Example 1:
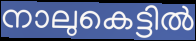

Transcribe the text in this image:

നാലുകെട്ടിൽ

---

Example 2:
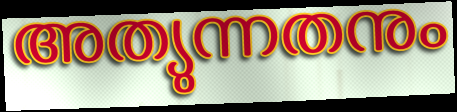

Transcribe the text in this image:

അത്യുന്നതനും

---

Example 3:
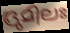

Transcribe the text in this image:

ദ്രുമിലഃ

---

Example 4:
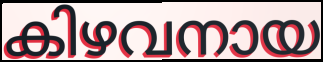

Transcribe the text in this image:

കിഴവനായ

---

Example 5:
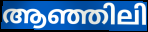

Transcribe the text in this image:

ആഞ്ഞിലി